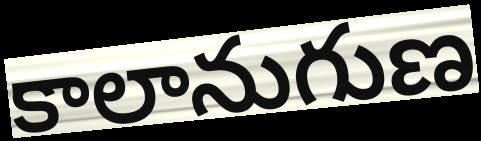
కాలానుగుణ